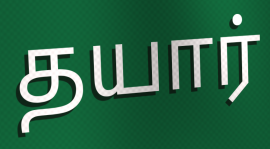
தயார்